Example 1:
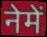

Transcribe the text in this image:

नेमें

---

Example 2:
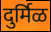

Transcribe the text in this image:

दुर्मिळ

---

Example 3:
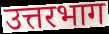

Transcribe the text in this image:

उत्तरभाग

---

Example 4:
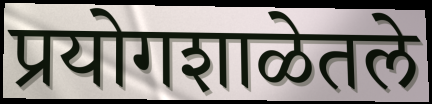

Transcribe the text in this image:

प्रयोगशाळेतले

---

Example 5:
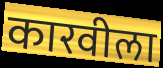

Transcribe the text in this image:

कारवीला